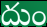
దుం